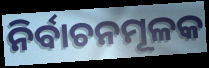
ନିର୍ବାଚନମୂଳକ